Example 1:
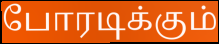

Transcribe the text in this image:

போரடிக்கும்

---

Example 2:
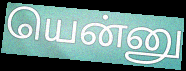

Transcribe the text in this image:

யென்னு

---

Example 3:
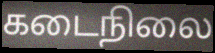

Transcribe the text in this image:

கடைநிலை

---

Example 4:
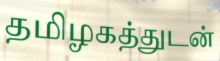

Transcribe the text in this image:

தமிழகத்துடன்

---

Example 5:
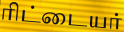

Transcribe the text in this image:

ரிட்டையர்